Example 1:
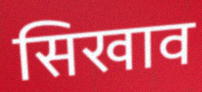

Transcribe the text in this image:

सिखाव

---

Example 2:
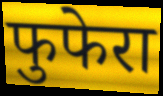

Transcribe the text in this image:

फुफेरा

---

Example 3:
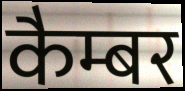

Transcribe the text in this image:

कैम्बर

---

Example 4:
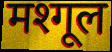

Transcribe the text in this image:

मश्गूल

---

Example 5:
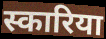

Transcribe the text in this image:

स्कारिया